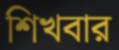
শিখবার